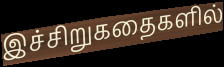
இச்சிறுகதைகளில்